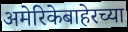
अमेरिकेबाहेरच्या